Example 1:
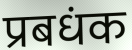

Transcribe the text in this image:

प्रबधंक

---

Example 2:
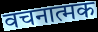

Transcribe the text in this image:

वचनात्मक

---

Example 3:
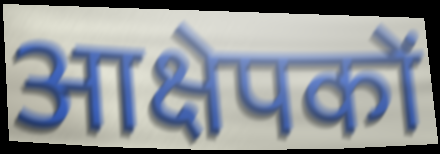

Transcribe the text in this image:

आक्षेपकों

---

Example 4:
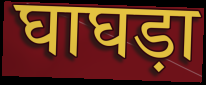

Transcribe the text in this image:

घाघड़ा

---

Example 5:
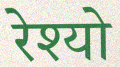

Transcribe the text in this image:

रेश्यो